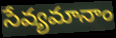
సేవ్యమానాం